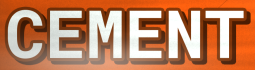
CEMENT